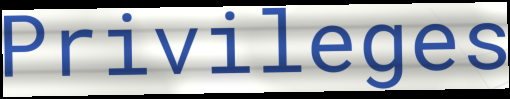
Privileges